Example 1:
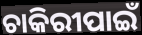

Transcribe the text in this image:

ଚାକିରୀପାଇଁ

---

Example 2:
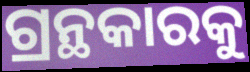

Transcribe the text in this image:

ଗ୍ରନ୍ଥକାରକୁ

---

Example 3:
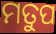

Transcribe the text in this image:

ମତୁପ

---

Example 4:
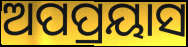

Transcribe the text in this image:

ଅପପ୍ରୟାସ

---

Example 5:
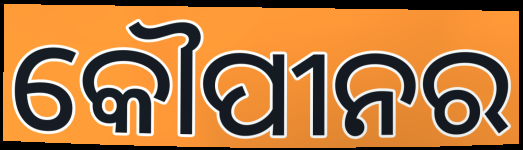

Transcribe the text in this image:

କୌପୀନର